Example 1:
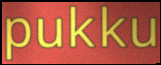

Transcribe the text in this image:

pukku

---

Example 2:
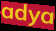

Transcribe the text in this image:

adya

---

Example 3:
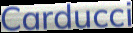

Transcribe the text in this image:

Carducci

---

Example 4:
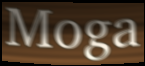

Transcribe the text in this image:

Moga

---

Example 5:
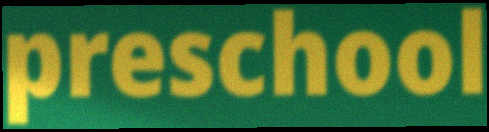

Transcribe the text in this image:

preschool